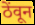
ठेंवून